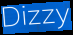
Dizzy